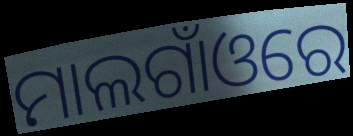
ମାଲଗାଁଓରେ